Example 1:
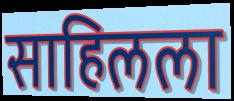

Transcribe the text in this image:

साहिलला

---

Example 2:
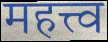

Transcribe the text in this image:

महत्त्व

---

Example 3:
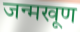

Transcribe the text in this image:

जन्मखूण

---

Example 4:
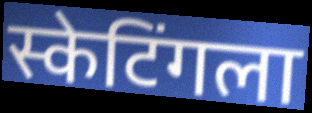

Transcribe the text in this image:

स्केटिंगला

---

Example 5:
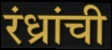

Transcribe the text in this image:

रंध्रांची